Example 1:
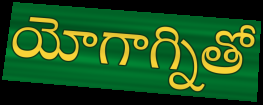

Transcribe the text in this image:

యోగాగ్నితో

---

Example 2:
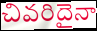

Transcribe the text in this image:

చివరిదైనా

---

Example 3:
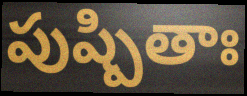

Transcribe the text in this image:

పుష్పితాః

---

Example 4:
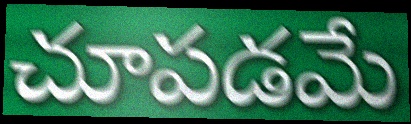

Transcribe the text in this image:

చూపడమే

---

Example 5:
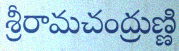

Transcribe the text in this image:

శ్రీరామచంద్రుణ్ణి